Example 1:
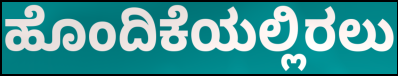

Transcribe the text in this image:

ಹೊಂದಿಕೆಯಲ್ಲಿರಲು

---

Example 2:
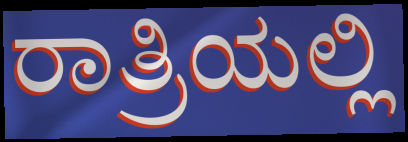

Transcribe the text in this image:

ರಾತ್ರಿಯಲ್ಲಿ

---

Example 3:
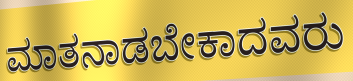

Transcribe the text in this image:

ಮಾತನಾಡಬೇಕಾದವರು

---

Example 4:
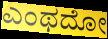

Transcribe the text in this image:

ಎಂಥದೋ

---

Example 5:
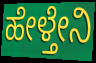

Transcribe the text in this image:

ಹೇಳ್ತೇನಿ